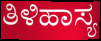
ತಿಳಿಹಾಸ್ಯ